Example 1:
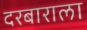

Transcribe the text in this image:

दरबाराला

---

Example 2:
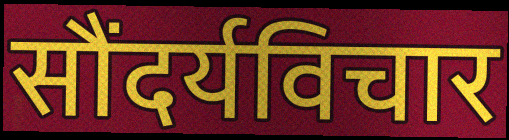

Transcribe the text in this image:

सौंदर्यविचार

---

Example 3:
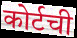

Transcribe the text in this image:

कोर्टची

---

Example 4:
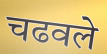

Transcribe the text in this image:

चढवले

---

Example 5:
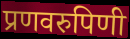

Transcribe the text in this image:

प्रणवरुपिणी